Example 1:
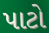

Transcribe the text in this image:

પાટો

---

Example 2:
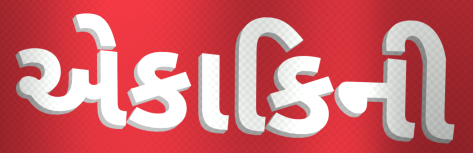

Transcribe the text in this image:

એકાકિની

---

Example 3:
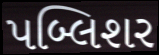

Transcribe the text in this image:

પબ્લિશર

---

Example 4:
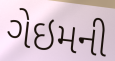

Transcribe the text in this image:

ગેઇમની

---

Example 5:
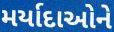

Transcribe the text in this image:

મર્યાદાઓને